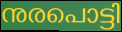
നുരപൊട്ടി